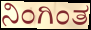
ನಿಂಗಿಂತ